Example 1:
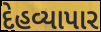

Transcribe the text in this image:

દેહવ્યાપાર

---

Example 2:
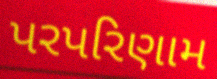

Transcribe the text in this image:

પરપરિણામ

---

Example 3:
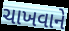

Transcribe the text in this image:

ચાખવાને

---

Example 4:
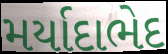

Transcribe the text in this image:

મર્યાદાભેદ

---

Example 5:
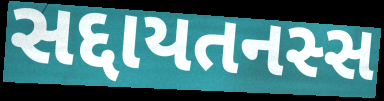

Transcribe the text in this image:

સદ્દાયતનસ્સ